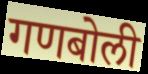
गणबोली